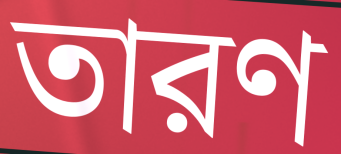
তারণ